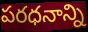
పరధనాన్ని